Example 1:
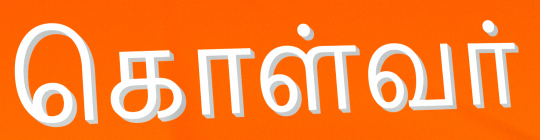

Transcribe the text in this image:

கொள்வர்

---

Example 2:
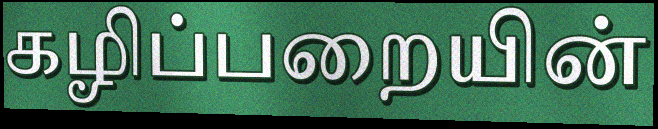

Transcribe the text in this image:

கழிப்பறையின்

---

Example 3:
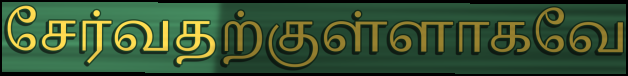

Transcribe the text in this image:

சேர்வதற்குள்ளாகவே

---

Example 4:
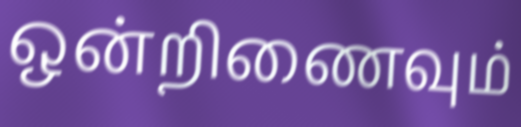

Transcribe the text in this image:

ஒன்றிணைவும்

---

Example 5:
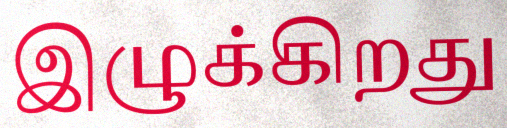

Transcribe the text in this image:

இழுக்கிறது